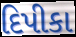
દિપીકા